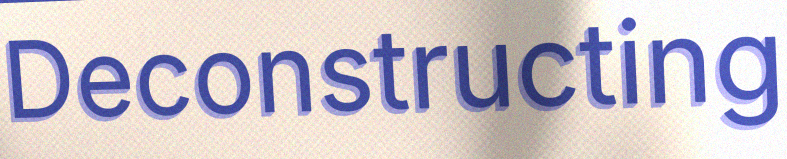
Deconstructing